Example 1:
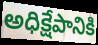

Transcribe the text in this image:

అధిక్షేపానికి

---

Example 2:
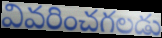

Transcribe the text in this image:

వివరించగలడు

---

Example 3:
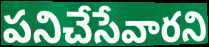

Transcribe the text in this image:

పనిచేసేవారని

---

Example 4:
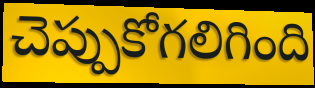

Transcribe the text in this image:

చెప్పుకోగలిగింది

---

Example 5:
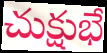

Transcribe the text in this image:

చుక్షుభే